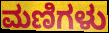
ಮಣಿಗಳು